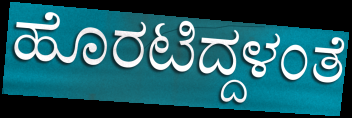
ಹೊರಟಿದ್ದಳಂತೆ